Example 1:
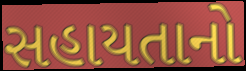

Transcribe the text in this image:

સહાયતાનો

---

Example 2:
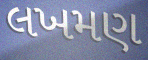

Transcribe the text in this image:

લખમણ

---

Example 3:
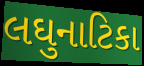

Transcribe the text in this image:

લઘુનાટિકા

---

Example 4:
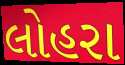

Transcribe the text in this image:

લોહરા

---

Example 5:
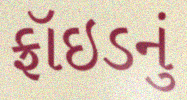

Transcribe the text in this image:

ફ્રૉઇડનું